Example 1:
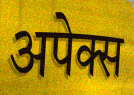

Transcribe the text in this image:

अपेक्स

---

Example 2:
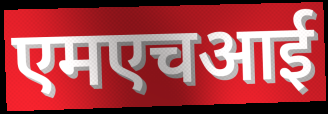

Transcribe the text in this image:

एमएचआई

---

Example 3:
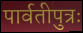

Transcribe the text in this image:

पार्वतीपुत्रः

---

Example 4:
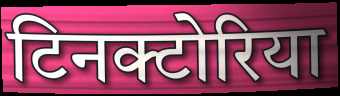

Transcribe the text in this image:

टिनक्टोरिया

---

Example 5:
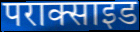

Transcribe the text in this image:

पराक्साइड